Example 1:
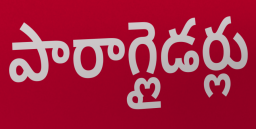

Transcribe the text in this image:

పారాగ్లైడర్లు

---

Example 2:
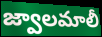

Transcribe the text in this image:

జ్వాలమాలీ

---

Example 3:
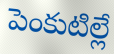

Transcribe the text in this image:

పెంకుటిల్లే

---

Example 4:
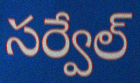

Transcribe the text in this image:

సర్వేల్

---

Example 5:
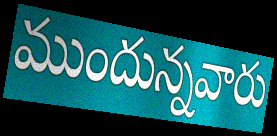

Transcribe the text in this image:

ముందున్నవారు